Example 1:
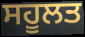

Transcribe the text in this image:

ਸਹੂਲਤ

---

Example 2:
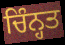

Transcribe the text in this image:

ਚਿੰਨ੍ਹਤ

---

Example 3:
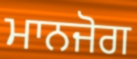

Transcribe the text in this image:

ਮਾਨਜੋਗ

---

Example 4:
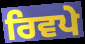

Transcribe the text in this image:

ਰਿਵਪੇ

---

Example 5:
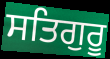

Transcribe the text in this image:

ਸਤਿਗੁਰੂ